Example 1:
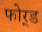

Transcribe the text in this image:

फोर्ड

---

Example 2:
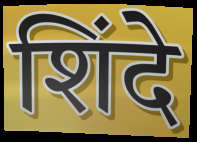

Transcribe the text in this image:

शिंदे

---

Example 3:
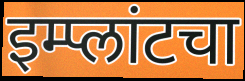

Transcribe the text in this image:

इम्प्लांटचा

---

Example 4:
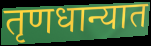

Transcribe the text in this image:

तृणधान्यात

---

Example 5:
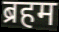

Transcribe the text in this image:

ब्रहम